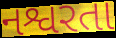
નશ્વરતા